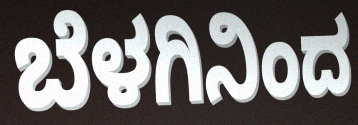
ಬೆಳಗಿನಿಂದ